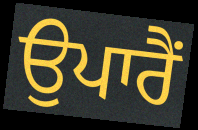
ਉਪਾਰੈਂ